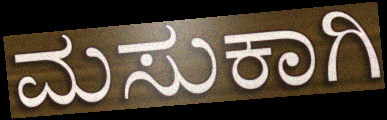
ಮಸುಕಾಗಿ